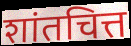
शांतचित्त